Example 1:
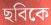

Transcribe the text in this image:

ছবিকে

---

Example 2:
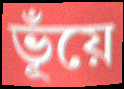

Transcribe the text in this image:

ভূঁয়ে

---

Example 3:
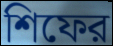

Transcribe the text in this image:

শিফের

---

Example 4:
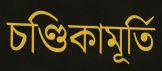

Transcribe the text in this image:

চণ্ডিকামূর্তি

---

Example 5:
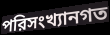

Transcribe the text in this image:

পরিসংখ্যানগত